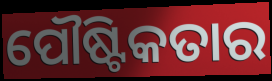
ପୌଷ୍ଟିକତାର